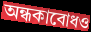
অন্ধকাবোধও